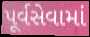
પૂર્વસેવામાં